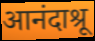
आनंदाश्रू